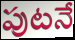
పుటనే